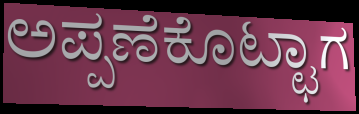
ಅಪ್ಪಣೆಕೊಟ್ಟಾಗ